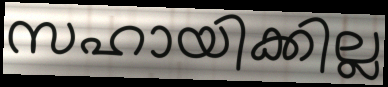
സഹായിക്കില്ല